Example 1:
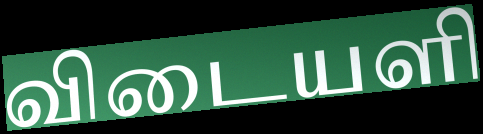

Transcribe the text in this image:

விடையளி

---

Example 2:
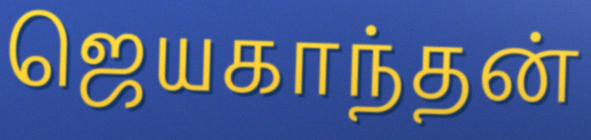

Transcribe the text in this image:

ஜெயகாந்தன்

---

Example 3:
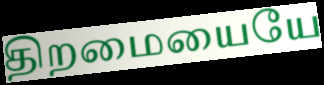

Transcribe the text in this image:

திறமையையே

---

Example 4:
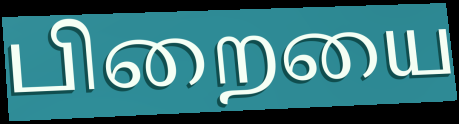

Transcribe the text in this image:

பிறையை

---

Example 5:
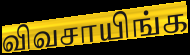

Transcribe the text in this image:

விவசாயிங்க